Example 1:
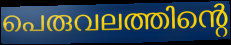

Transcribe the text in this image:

പെരുവലത്തിന്റെ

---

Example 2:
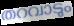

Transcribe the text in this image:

തറവാടും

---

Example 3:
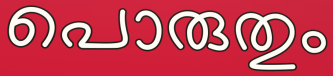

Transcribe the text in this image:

പൊരുതും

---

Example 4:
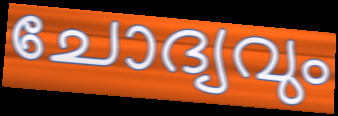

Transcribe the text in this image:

ചോദ്യവും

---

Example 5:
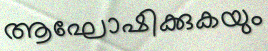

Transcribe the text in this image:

ആഘോഷിക്കുകയും